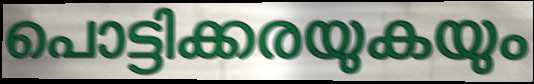
പൊട്ടിക്കരയുകയും